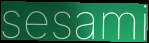
sesami